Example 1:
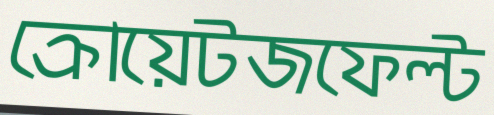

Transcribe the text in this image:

ক্রোয়েটজফেল্ট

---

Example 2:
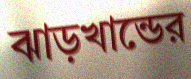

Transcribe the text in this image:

ঝাড়খান্ডের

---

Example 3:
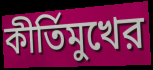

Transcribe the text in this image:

কীর্তিমুখের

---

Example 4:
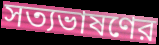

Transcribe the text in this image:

সত্যভাষণের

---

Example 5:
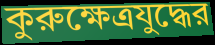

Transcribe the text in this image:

কুরুক্ষেত্রযুদ্ধের